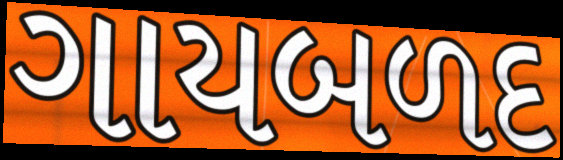
ગાયબળદ